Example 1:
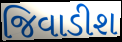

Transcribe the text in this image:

જિવાડીશ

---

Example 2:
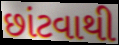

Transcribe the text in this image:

છાંટવાથી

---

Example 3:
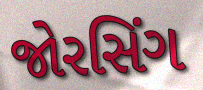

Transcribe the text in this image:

જોરસિંગ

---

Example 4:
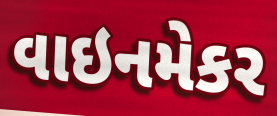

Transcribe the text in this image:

વાઇનમેકર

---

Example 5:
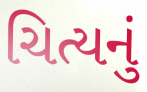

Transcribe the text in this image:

ચિત્યનું